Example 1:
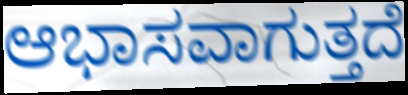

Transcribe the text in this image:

ಆಭಾಸವಾಗುತ್ತದೆ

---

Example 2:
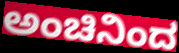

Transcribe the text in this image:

ಅಂಚಿನಿಂದ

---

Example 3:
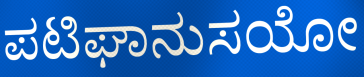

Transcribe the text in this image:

ಪಟಿಘಾನುಸಯೋ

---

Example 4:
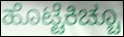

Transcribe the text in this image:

ಹೊಟ್ಟೆಕಿಚ್ಚೂ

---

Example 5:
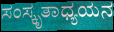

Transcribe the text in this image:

ಸಂಸ್ಕೃತಾಧ್ಯಯನ